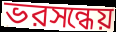
ভরসন্ধেয়